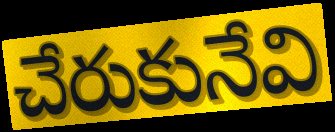
చేరుకునేవి